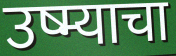
उष्म्याचा